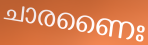
ചാരണൈഃ